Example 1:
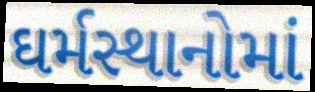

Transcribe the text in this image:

ઘર્મસ્થાનોમાં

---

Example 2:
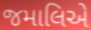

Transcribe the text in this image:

જમાલિએ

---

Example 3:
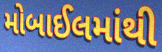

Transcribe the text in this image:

મોબાઈલમાંથી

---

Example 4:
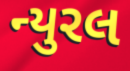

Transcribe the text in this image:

ન્યુરલ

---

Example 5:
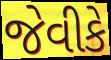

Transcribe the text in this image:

જેવીકે